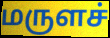
மருளச்